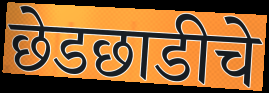
छेडछाडीचे